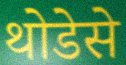
थोडेसे